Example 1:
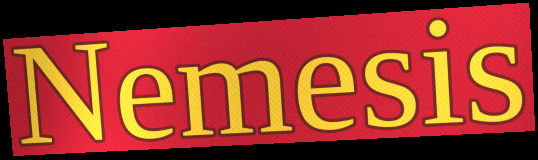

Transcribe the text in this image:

Nemesis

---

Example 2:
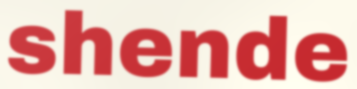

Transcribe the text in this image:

shende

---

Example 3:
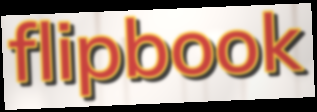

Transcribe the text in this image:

flipbook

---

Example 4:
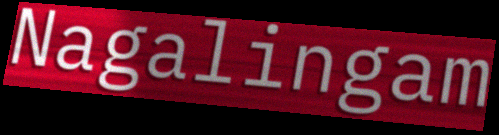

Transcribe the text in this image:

Nagalingam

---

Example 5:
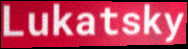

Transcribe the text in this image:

Lukatsky